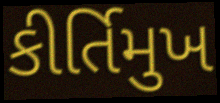
કીર્તિમુખ